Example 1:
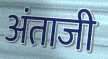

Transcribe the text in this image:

अंताजी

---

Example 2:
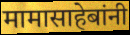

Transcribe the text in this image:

मामासाहेबांनी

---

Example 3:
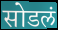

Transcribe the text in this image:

सोडलं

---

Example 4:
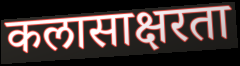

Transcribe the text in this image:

कलासाक्षरता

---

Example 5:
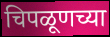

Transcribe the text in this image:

चिपळूणच्या